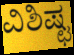
ವಿಶಿಷ್ಟ